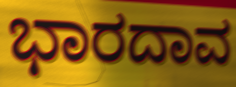
ಭಾರದಾವ